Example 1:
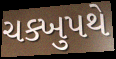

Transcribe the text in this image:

ચક્ખુપથે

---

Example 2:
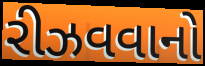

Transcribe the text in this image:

રીઝવવાનો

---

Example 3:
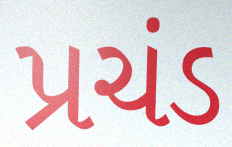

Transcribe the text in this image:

પ્રચંડ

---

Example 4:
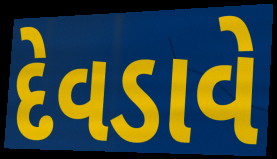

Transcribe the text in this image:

દેવડાવે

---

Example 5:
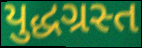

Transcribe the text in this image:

યુદ્ધગ્રસ્ત